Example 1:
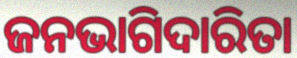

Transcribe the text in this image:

ଜନଭାଗିଦାରିତା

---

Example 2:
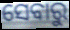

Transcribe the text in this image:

ସେବାରୁ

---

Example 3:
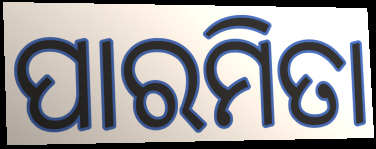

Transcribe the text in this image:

ପାରମିତା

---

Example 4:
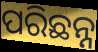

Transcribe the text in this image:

ପରିଛନ୍ନ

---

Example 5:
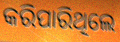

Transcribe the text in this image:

କରିପାରିଥିଲେ